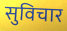
सुविचार